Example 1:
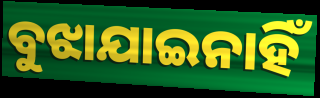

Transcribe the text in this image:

ବୁଝାଯାଇନାହିଁ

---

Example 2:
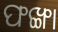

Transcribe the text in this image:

ଫଙ୍ଖା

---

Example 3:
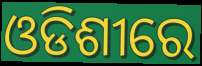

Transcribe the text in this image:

ଓଡିଶୀରେ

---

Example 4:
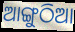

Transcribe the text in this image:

ଆଙ୍ଗୁଠିଆ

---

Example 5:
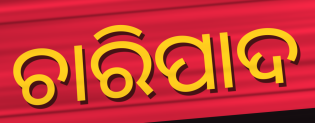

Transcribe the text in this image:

ଚାରିପାଦ